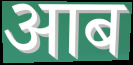
आब